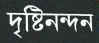
দৃষ্টিনন্দন